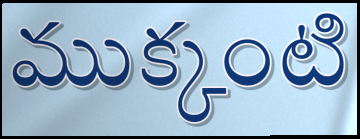
ముక్కంటి